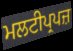
ਮਲਟੀਪ੍ਰਪਜ਼